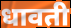
धावती